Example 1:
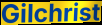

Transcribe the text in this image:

Gilchrist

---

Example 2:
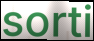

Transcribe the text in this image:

sorti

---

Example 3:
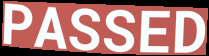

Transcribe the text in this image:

PASSED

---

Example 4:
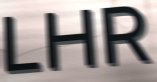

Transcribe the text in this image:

LHR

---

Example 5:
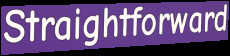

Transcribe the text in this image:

Straightforward